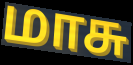
மாசு